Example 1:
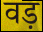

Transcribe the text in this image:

वड़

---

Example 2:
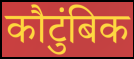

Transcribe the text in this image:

कौटुंबिक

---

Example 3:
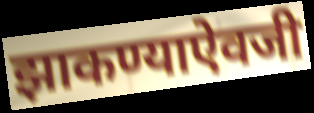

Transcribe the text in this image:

झाकण्याऐवजी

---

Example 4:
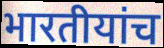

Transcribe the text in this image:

भारतीयांच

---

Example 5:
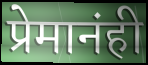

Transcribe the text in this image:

प्रेमानंही